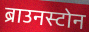
ब्राउनस्टोन